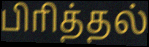
பிரித்தல்